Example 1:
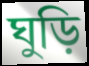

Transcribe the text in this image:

ঘুড়ি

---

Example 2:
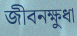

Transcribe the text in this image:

জীবনক্ষুধা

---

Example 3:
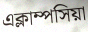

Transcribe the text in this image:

এক্লাম্পসিয়া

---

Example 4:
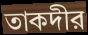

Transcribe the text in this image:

তাকদীর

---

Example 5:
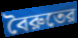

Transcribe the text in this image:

বৈরুতের